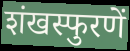
शंखस्फुरणें